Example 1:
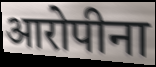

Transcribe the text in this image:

आरोपीना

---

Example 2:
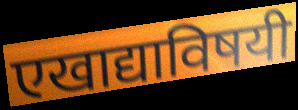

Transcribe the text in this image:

एखाद्याविषयी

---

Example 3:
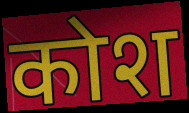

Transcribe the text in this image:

कोश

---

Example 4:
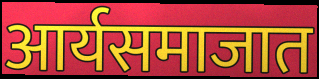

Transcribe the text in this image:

आर्यसमाजात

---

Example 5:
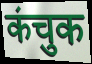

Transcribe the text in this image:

कंचुक